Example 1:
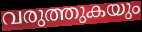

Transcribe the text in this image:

വരുത്തുകയും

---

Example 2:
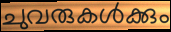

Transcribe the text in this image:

ചുവരുകൾക്കും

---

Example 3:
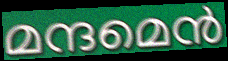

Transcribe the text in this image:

മന്ദമെൻ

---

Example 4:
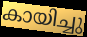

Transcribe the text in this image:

കായിച്ചു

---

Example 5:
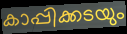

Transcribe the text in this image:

കാപ്പിക്കടയും